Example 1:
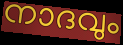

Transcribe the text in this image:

നാദവും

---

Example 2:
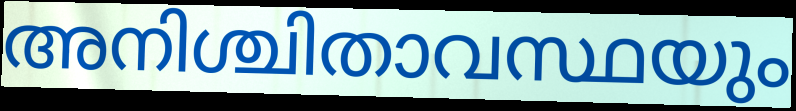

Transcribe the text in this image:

അനിശ്ചിതാവസ്ഥയും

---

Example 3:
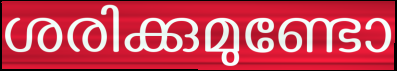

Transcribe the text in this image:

ശരിക്കുമുണ്ടോ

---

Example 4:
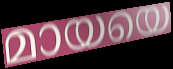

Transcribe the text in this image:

മായയെ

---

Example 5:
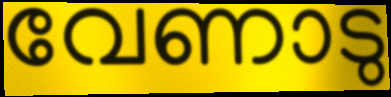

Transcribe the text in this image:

വേണാടു